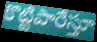
కొట్టిపారేస్తూ